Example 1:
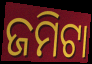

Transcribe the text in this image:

ଜମିଟା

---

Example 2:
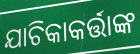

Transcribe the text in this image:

ଯାଚିକାକର୍ତ୍ତାଙ୍କ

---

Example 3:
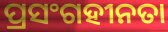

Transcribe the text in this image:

ପ୍ରସଂଗହୀନତା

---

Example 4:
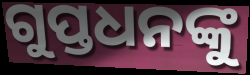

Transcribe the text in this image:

ଗୁପ୍ତଧନଙ୍କୁ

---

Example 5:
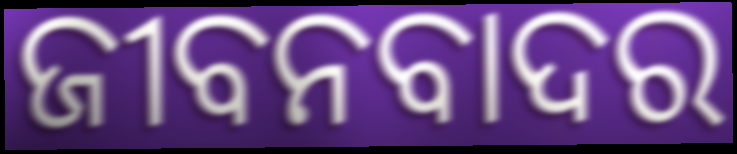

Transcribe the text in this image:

ଜୀବନବାଦର